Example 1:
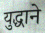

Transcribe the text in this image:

युद्धाने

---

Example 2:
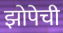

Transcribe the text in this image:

झोपेची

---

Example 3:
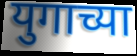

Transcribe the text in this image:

युगाच्या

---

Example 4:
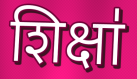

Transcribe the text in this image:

शिक्षा॑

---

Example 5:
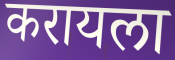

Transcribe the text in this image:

करायला